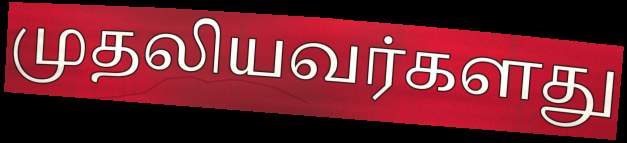
முதலியவர்களது